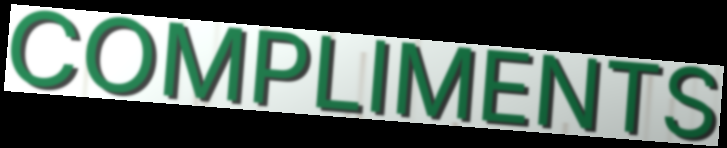
COMPLIMENTS